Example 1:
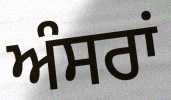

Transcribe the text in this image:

ਅੰਸਰਾਂ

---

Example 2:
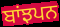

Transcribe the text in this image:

ਬਾਂਝਪਨ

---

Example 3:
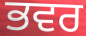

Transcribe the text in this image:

ਭਵਰ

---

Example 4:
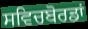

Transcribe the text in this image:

ਸਵਿਚਬੋਰਡਾਂ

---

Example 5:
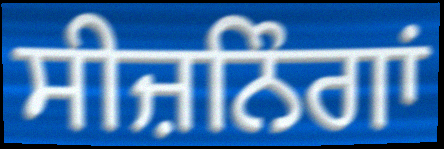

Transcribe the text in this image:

ਸੀਜ਼ਨਿੰਗਾਂ